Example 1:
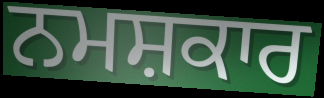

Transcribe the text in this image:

ਨਮਸ਼ਕਾਰ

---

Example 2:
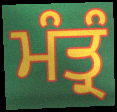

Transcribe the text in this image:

ਮੰਤ੍ਰੰ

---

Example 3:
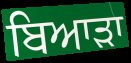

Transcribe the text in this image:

ਬਿਆੜਾ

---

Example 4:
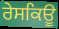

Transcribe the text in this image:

ਰੇਸਕਿਊ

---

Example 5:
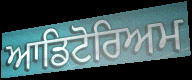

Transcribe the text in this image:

ਆਡਿਟੋਰਿਅਮ